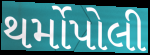
થર્મોપોલી